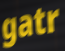
gatr